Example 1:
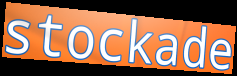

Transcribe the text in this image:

stockade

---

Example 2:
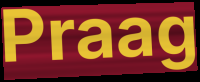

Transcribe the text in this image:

Praag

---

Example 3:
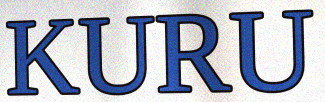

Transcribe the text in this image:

KURU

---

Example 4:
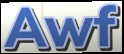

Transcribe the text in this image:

Awf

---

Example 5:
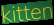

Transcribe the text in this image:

kitten